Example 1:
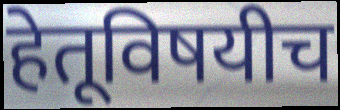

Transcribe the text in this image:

हेतूविषयीच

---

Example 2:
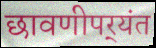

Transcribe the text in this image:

छावणीपर्यंत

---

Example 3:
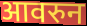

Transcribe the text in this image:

आवरुन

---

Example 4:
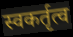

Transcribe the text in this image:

स्वकर्तृत्व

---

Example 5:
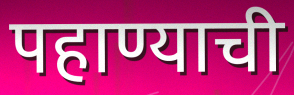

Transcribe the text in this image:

पहाण्याची